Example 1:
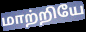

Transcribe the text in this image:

மாற்றியே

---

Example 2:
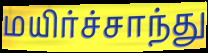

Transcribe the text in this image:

மயிர்ச்சாந்து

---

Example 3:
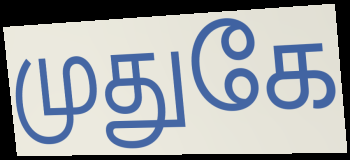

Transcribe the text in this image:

முதுகே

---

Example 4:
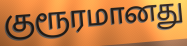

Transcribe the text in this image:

குரூரமானது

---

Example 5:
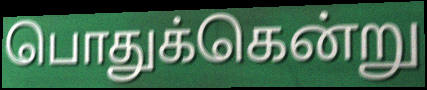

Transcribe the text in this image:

பொதுக்கென்று